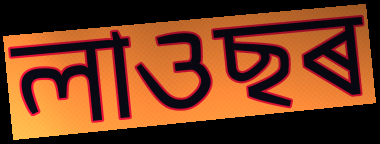
লাওছৰ